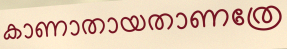
കാണാതായതാണത്രേ